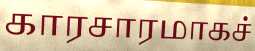
காரசாரமாகச்